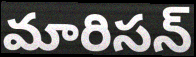
మారిసన్